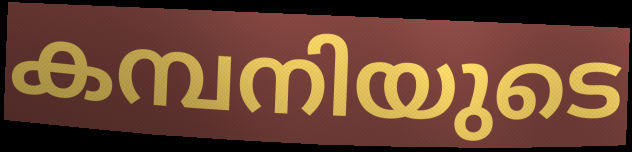
കമ്പനിയുടെ